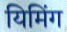
यिमिंग